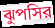
ঝুপসির